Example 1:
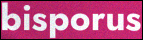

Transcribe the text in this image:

bisporus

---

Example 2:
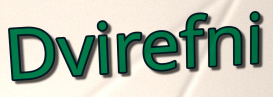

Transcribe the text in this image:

Dvirefni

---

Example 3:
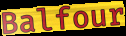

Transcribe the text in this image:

Balfour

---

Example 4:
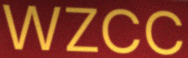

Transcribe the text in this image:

WZCC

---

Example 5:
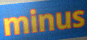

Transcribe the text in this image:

minus